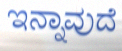
ಇನ್ನಾವುದೆ